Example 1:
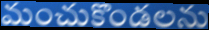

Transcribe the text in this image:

మంచుకొండలను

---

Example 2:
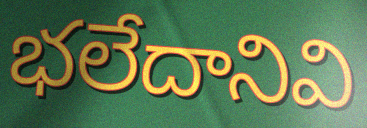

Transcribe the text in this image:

భలేదానివి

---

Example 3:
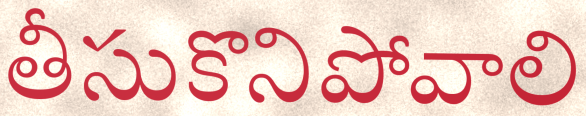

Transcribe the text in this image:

తీసుకొనిపోవాలి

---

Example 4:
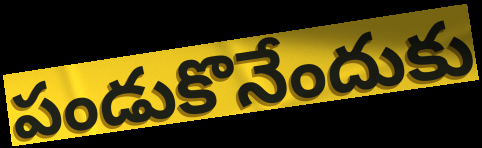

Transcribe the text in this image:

పండుకొనేందుకు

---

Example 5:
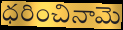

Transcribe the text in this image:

ధరించినామె